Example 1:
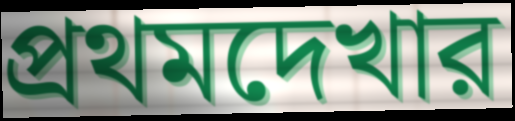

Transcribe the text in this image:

প্রথমদেখার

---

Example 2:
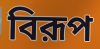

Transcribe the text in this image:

বিরূপ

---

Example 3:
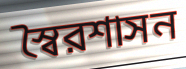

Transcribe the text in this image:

স্বৈরশাসন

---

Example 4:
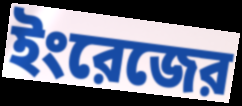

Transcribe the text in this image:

ইংরেজের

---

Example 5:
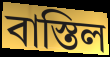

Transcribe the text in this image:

বাস্তিল